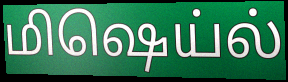
மிஷெய்ல்